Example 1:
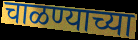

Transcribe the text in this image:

चाळण्याच्या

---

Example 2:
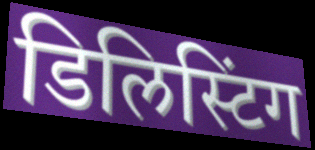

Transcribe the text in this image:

डिलिस्टिंग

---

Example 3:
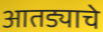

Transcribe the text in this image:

आतड्याचे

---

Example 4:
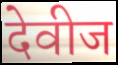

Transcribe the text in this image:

देवीज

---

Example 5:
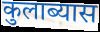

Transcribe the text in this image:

कुलाब्यास